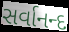
સર્વાનન્દ